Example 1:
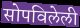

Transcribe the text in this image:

सोपविलेली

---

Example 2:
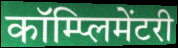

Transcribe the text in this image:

कॉम्प्लिमेंटरी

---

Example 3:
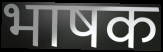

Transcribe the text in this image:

भाषक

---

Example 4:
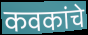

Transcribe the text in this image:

कवकांचे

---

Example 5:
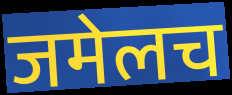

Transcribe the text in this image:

जमेलच